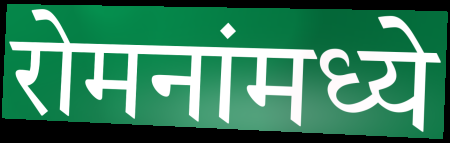
रोमनांमध्ये